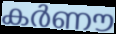
കർണൗ